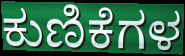
ಕುಣಿಕೆಗಳ